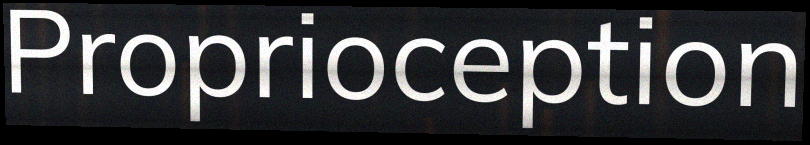
Proprioception